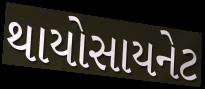
થાયોસાયનેટ